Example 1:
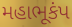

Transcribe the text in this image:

મહાભૂકંપ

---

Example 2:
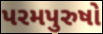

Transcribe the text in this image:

પરમપુરુષો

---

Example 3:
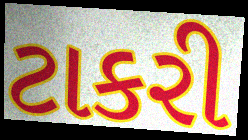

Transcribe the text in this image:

ટાકરી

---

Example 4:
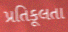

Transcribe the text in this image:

પ્રતિકૂલતા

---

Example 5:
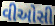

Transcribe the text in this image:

વીઓસી